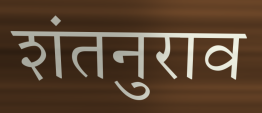
शंतनुराव